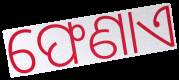
ଫେଣାଏ